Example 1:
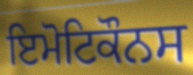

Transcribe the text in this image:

ਇਮੋਟਿਕੌਨਸ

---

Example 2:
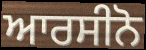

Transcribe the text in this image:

ਆਰਸੀਨੋ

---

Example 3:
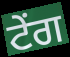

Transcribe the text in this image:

ਟੇਂਗ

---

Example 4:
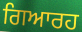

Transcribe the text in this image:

ਗਿਆਰਹ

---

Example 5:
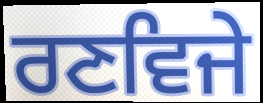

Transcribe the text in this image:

ਰਣਵਿਜੇ